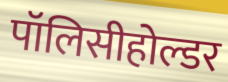
पॉलिसीहोल्डर